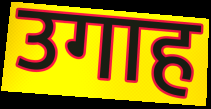
उगाह